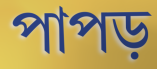
পাপড়